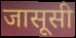
जासूसी